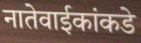
नातेवाईकांकडे